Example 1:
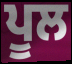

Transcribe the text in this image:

ਪੂਲ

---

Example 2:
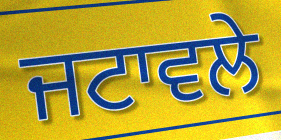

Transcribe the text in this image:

ਜਟਾਵਲੇ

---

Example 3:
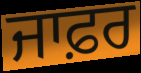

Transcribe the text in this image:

ਜਾਫ਼ਰ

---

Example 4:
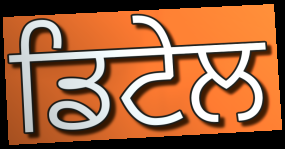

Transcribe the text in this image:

ਡਿਟੇਲ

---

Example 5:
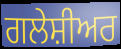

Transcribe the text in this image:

ਗਲੇਸ਼ੀਅਰ